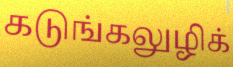
கடுங்கலுழிக்